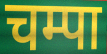
चम्पा